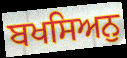
ਬਖਸਿਅਨੁ